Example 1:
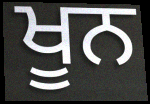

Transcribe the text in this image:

ਖੂਨ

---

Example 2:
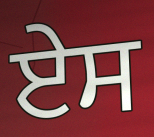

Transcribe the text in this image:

ਏਸ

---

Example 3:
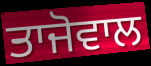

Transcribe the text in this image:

ਤਾਜੋਵਾਲ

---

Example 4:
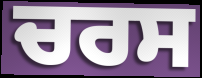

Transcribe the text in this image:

ਚਰਸ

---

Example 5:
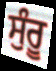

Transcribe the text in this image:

ਸੁੰਰੂ